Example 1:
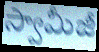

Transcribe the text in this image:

స్వామీజీ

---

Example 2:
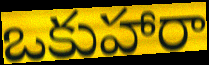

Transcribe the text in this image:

ఒకుహారా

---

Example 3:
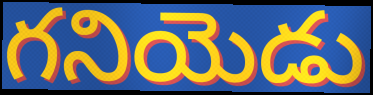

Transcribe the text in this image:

గనియెడు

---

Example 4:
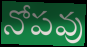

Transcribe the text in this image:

నోపవు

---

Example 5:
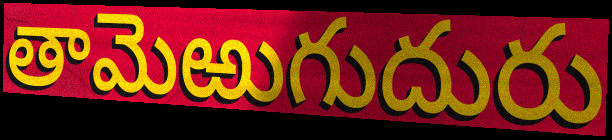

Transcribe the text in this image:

తామెఱుగుదురు